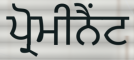
ਪ੍ਰੋਮੀਨੈਂਟ